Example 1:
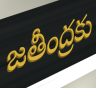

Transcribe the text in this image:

జతీంద్రకు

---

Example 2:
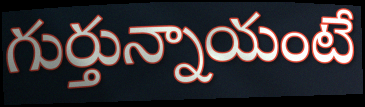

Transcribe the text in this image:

గుర్తున్నాయంటే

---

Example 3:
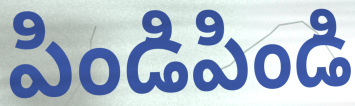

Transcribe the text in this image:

పిండిపిండి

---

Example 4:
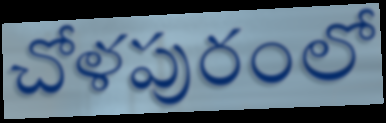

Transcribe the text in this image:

చోళపురంలో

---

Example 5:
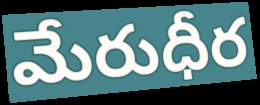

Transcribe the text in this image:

మేరుధీర